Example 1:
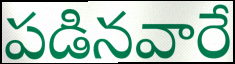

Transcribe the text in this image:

పడినవారే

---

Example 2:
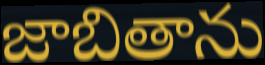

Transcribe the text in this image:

జాబితాను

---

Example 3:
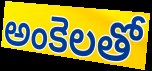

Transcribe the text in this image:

అంకెలతో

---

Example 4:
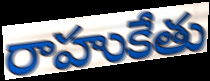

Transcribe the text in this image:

రాహుకేతు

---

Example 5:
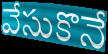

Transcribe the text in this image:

వేసుకొనే